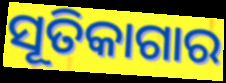
ସୂତିକାଗାର